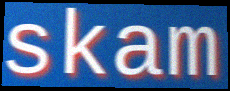
skam